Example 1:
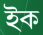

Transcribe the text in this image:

ইক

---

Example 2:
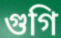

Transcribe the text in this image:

গুগি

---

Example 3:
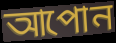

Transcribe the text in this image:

আপোন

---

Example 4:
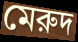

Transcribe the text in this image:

মেরুদ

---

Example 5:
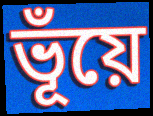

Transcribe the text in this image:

ভূঁয়ে